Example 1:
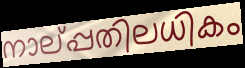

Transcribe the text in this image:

നാല്പ്പതിലധികം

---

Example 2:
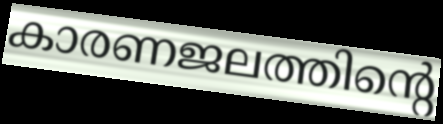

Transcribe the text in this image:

കാരണജലത്തിന്റെ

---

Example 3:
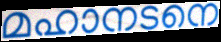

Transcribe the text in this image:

മഹാനടനെ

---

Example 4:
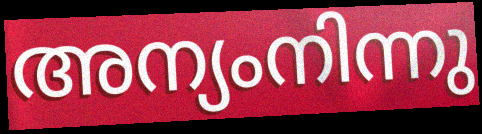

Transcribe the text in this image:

അന്യംനിന്നു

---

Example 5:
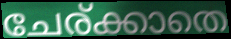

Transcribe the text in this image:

ചേര്ക്കാതെ